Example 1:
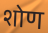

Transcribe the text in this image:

शोण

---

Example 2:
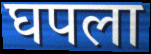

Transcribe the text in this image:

घपला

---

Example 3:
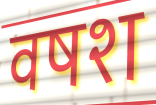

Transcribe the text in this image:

वषश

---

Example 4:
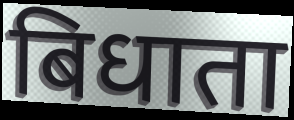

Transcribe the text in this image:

बिधाता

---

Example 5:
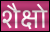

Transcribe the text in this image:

शैक्षो